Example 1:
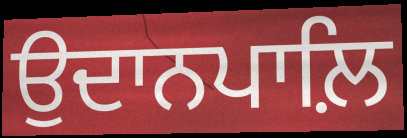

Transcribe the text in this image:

ਉਦਾਨਪਾਲ਼ਿ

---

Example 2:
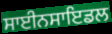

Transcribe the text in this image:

ਸਾਈਨਸਾਇਡਲ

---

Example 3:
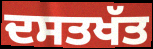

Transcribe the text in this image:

ਦਸਤਖੱਤ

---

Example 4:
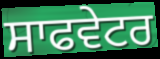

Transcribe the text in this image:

ਸਾਫਵੇਟਰ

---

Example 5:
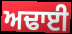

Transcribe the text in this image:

ਅਢਾਈ